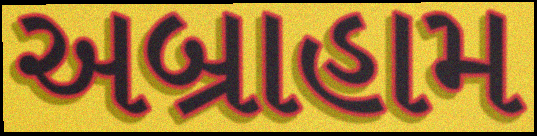
અબ્રાહામ